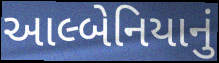
આલ્બેનિયાનું